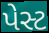
પેસ્ટ